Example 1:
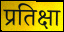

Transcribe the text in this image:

प्रतिक्षा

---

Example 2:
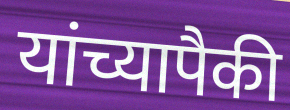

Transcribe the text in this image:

यांच्यापैकी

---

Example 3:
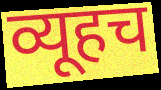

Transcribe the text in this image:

व्यूहच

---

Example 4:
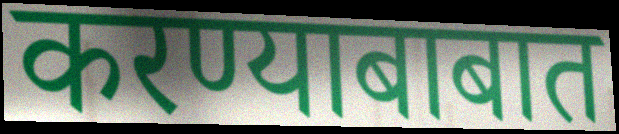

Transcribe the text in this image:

करण्याबाबात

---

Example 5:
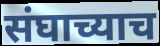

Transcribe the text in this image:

संघाच्याच